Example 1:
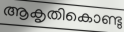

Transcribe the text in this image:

ആകൃതികൊണ്ടു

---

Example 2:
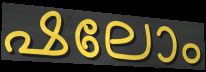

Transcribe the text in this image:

ഷലോം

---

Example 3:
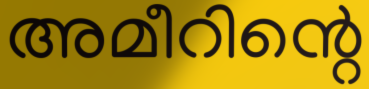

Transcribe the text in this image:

അമീറിന്റെ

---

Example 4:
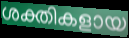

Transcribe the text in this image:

ശക്തികളായ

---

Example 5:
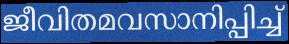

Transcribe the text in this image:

ജീവിതമവസാനിപ്പിച്ച്